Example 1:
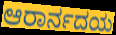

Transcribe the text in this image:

ಆರಾರ್ನದಯ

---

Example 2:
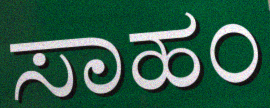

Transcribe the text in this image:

ಸಾಹಂ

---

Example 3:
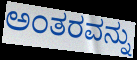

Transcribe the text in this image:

ಅಂತರವನ್ನು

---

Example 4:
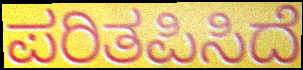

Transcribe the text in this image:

ಪರಿತಪಿಸಿದೆ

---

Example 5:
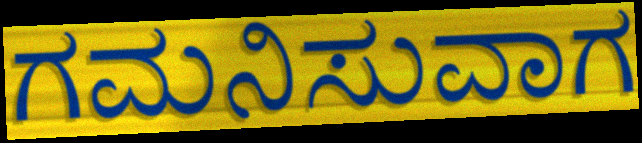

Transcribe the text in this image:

ಗಮನಿಸುವಾಗ